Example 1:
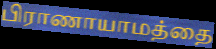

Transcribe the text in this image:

பிராணாயாமத்தை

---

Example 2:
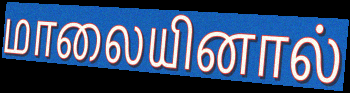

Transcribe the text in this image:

மாலையினால்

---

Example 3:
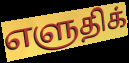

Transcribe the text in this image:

எளுதிக்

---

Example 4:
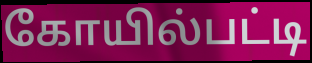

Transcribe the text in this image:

கோயில்பட்டி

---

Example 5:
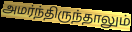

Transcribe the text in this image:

அமர்ந்திருந்தாலும்